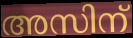
അസിന്